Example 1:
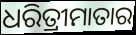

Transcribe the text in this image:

ଧରିତ୍ରୀମାତାର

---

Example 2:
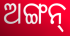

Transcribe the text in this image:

ଅଙ୍ଗନ୍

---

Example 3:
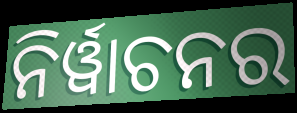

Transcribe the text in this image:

ନିର୍ୱାଚନର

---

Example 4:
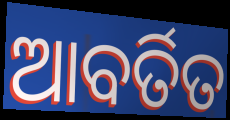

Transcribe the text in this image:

ଆବର୍ତିତ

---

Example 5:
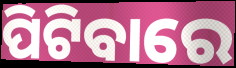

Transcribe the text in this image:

ପିଟିବାରେ